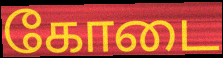
கோடை